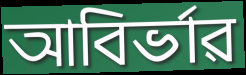
আবিৰ্ভাৱ